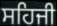
ਸਹਿਜੀ